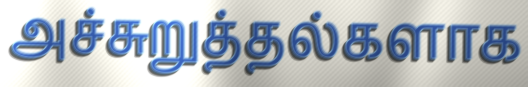
அச்சுறுத்தல்களாக